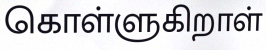
கொள்ளுகிறாள்